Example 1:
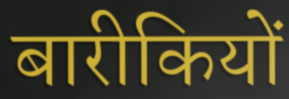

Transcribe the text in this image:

बारीकियों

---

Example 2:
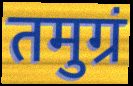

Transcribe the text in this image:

तमुग्रं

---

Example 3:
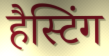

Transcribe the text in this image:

हैस्टिंग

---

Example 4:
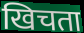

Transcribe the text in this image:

खिचता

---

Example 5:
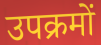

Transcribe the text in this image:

उपक्रमों